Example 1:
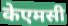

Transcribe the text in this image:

केएमसी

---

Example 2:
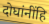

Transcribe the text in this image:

दोघांनींहि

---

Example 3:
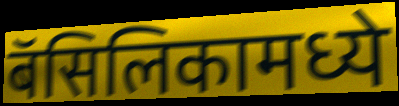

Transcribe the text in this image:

बॅसिलिकामध्ये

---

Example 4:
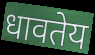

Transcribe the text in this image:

धावतेय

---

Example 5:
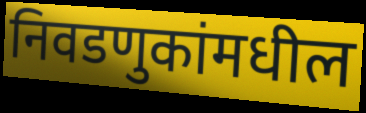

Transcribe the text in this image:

निवडणुकांमधील